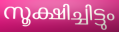
സൂക്ഷിച്ചിട്ടും